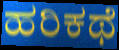
ಹರಿಕಥೆ